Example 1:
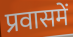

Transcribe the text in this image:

प्रवासमें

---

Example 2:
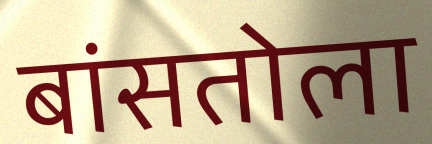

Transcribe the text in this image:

बांसतोला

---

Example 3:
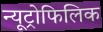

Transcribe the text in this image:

न्यूट्रोफिलिक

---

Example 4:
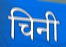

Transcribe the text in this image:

चिनी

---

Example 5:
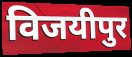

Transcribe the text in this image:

विजयीपुर